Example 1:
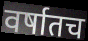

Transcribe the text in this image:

वर्षातच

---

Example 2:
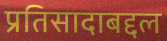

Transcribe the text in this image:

प्रतिसादाबद्दल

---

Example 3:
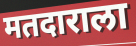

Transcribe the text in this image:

मतदाराला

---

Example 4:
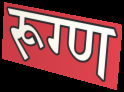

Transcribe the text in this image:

रूग्ण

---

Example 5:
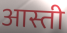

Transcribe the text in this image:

आस्ती